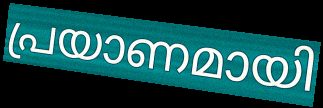
പ്രയാണമായി